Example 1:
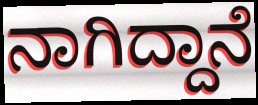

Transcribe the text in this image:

ನಾಗಿದ್ದಾನೆ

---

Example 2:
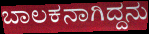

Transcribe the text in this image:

ಬಾಲಕನಾಗಿದ್ದನು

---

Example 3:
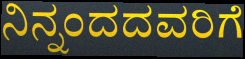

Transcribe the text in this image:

ನಿನ್ನಂದದವರಿಗೆ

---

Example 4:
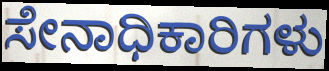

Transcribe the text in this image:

ಸೇನಾಧಿಕಾರಿಗಳು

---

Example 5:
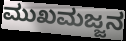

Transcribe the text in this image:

ಮುಖಮಜ್ಜನ